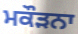
ਮਕੌੜਨਾ